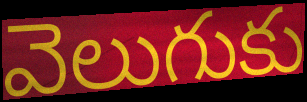
వెలుగుకు